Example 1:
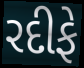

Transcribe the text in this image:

રદીફે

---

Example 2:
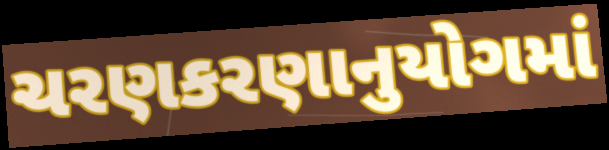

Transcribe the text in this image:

ચરણકરણાનુયોગમાં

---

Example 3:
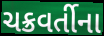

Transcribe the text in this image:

ચક્રવર્તીના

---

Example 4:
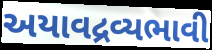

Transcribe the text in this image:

અયાવદ્રવ્યભાવી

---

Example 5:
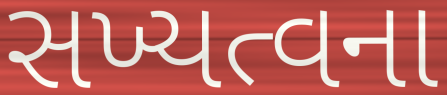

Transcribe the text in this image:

સખ્યત્વના